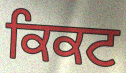
ਕਿਕਟ